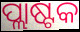
ପ୍ଲାଷ୍ଟକ